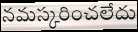
నమస్కరించలేదు